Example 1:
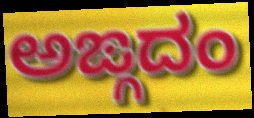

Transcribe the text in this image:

ಅಙ್ಗದಂ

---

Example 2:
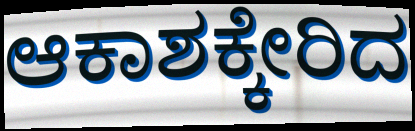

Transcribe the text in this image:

ಆಕಾಶಕ್ಕೇರಿದ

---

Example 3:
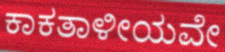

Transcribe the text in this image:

ಕಾಕತಾಳೀಯವೇ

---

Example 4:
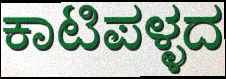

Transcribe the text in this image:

ಕಾಟಿಪಳ್ಳದ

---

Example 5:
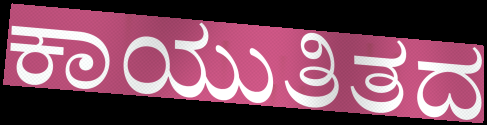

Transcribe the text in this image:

ಕಾಯುತಿತದ